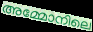
അമ്മോനിലെ